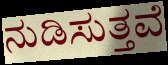
ನುಡಿಸುತ್ತವೆ